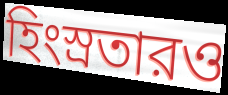
হিংস্রতারও